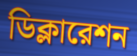
ডিক্লারেশন